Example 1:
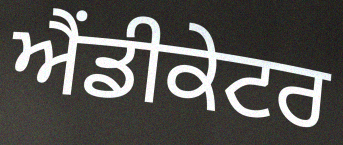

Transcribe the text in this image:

ਐਂਡੀਕੇਟਰ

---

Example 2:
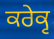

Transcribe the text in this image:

ਕਰੇਕ੍ਟ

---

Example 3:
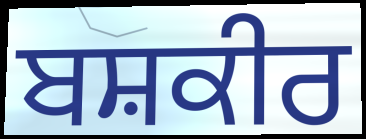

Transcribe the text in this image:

ਬਸ਼ਕੀਰ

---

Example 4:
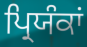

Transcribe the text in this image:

ਪ੍ਰਿਯੰਕਾਂ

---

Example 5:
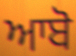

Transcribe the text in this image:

ਆਬੋ